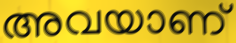
അവയാണ്